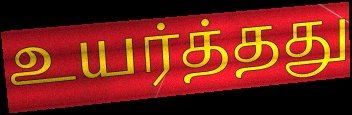
உயர்த்தது